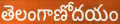
తెలంగాణోదయం